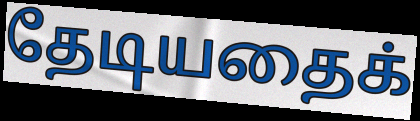
தேடியதைக்